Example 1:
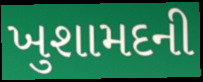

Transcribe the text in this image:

ખુશામદની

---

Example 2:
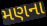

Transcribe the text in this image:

મણના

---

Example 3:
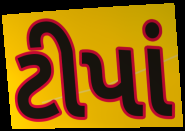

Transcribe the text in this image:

ટીપાં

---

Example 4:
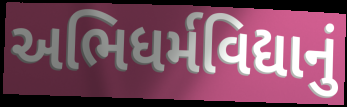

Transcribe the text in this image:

અભિધર્મવિદ્યાનું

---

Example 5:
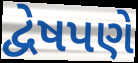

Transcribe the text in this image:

દ્વેષપણે